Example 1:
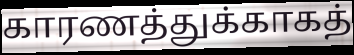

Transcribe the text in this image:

காரணத்துக்காகத்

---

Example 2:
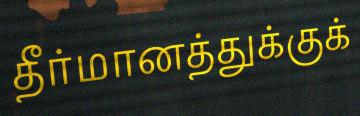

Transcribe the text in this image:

தீர்மானத்துக்குக்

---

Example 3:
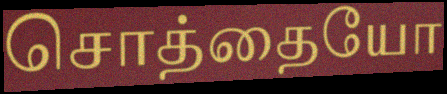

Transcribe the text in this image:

சொத்தையோ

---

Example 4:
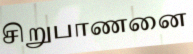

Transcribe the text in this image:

சிறுபாணனை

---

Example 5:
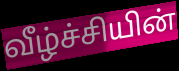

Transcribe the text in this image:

வீழ்ச்சியின்